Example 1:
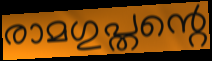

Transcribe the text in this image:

രാമഗുപ്തന്റെ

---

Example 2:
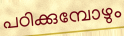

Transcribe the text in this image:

പഠിക്കുമ്പോഴും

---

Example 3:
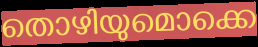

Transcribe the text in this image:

തൊഴിയുമൊക്കെ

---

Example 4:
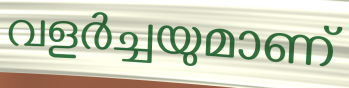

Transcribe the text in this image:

വളർച്ചയുമാണ്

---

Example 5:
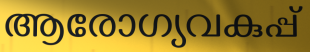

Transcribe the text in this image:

ആരോഗ്യവകുപ്പ്